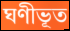
ঘণীভূত